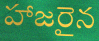
హాజరైన